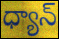
ధ్యాన్